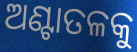
ଅଣ୍ଟାତଳକୁ